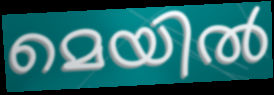
മെയിൽ